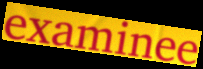
examinee